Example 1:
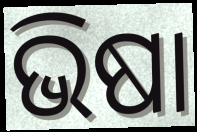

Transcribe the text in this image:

ଭିଷା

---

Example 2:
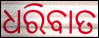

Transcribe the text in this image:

ଧରିବାତ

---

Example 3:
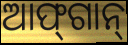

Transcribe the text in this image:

ଆଫ୍‌ଗାନ୍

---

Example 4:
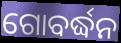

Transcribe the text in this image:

ଗୋବର୍ଦ୍ଧନ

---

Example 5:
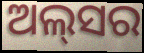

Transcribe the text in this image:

ଅଲ୍‌ସର